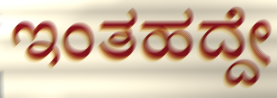
ಇಂತಹದ್ದೇ